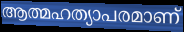
ആത്മഹത്യാപരമാണ്